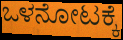
ಒಳನೋಟಕ್ಕೆ